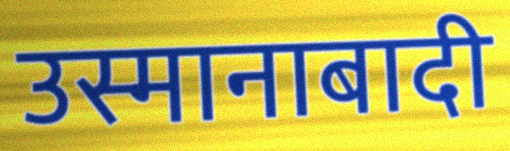
उस्मानाबादी